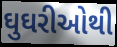
ઘુઘરીઓથી